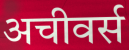
अचीवर्स